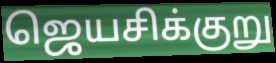
ஜெயசிக்குறு